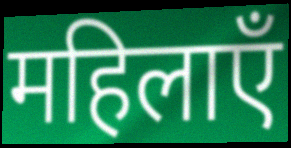
महिलाएँ